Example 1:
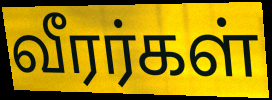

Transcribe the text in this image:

வீரர்கள்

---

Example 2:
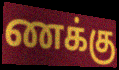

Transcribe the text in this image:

ணக்கு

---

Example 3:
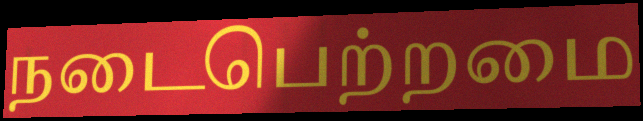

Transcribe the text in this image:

நடைபெற்றமை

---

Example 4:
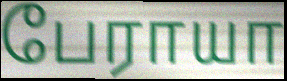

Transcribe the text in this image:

பேராயா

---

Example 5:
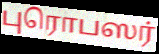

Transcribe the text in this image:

புரொபஸர்